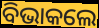
ବିଭାକଲେ